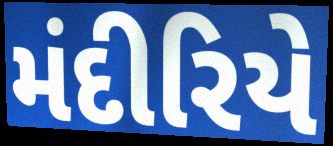
મંદીરિયે